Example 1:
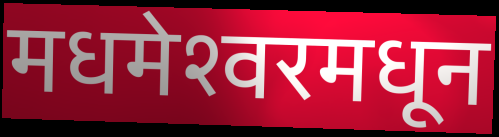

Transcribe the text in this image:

मधमेश्वरमधून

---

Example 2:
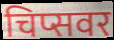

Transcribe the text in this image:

चिप्सवर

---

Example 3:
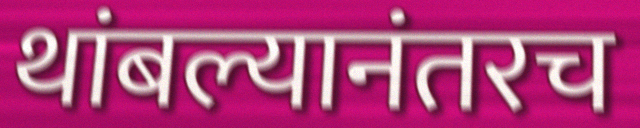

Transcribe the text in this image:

थांबल्यानंतरच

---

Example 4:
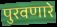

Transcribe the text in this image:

पुरवणारे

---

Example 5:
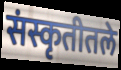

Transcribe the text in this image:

संस्कृतीतले